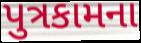
પુત્રકામના